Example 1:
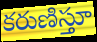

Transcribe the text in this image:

కరుణిస్తూ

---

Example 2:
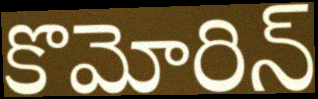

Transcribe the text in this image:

కొమోరిన్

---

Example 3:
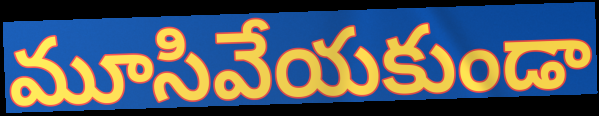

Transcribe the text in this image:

మూసివేయకుండా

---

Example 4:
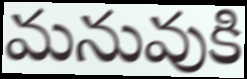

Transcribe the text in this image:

మనువుకి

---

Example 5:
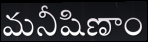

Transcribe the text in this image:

మనీషిణాం